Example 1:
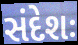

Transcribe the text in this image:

સંદેશઃ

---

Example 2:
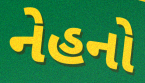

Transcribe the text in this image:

નેહનો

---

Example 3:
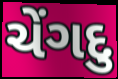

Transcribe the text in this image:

ચેંગદુ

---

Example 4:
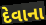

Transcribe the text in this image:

દેવાના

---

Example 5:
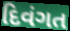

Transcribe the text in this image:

દિવંગત